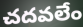
చదవలేం